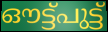
ഔട്ട്പുട്ട്